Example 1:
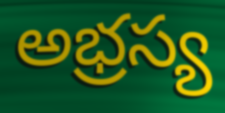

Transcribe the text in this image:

అభ్రస్య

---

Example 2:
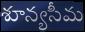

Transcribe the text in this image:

శూన్యసీమ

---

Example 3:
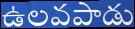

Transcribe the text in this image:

ఉలవపాడు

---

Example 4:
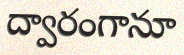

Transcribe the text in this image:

ద్వారంగానూ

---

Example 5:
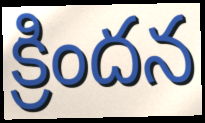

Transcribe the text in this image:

క్రిందన